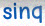
sinq